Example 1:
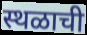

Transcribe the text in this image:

स्थळाची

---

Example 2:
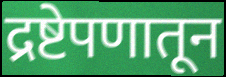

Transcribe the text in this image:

द्रष्टेपणातून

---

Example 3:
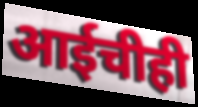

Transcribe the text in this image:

आईचीही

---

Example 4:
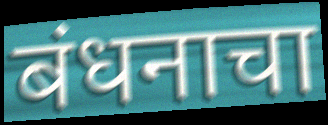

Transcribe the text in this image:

बंधनाचा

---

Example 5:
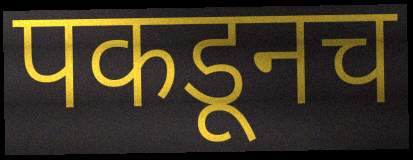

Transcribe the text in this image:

पकडूनच